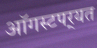
ऑगस्टपर्यत